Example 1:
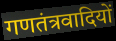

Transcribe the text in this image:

गणतंत्रवादियों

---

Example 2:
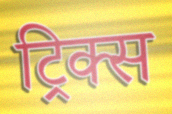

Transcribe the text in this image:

ट्रिक्स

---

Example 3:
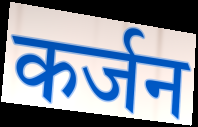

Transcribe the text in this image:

कर्जन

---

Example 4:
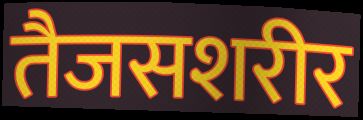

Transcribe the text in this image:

तैजसशरीर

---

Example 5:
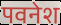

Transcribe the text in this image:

पवनेश